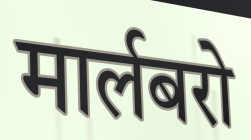
मार्लबरो